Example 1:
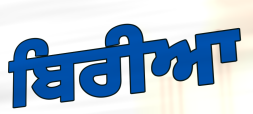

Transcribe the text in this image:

ਬਿਰੀਆ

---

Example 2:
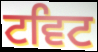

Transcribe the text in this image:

ਟਵਿਟ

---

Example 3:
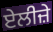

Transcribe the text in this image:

ਏਲੀਜ਼ੇ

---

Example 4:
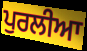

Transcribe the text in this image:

ਪੁਰਲੀਆ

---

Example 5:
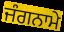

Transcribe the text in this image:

ਜੰਗਨਾਮੇ